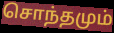
சொந்தமும்